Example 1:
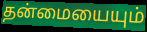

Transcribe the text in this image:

தன்மையையும்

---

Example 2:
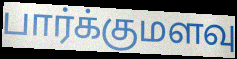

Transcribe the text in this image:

பார்க்குமளவு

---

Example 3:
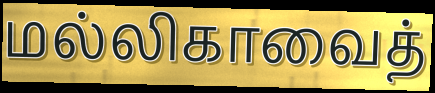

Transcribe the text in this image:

மல்லிகாவைத்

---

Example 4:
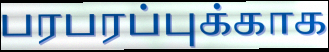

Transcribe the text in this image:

பரபரப்புக்காக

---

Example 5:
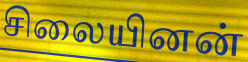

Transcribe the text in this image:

சிலையினன்